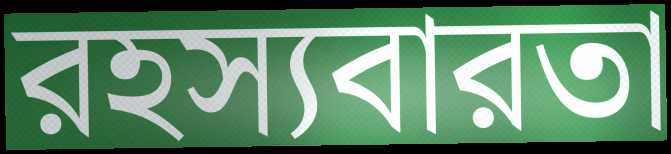
রহস্যবারতা